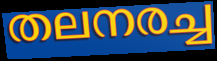
തലനരച്ച